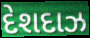
દેશદાઝ